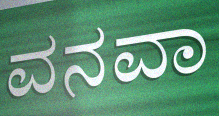
ವನವಾ